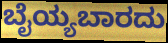
ಬೈಯ್ಯಬಾರದು